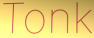
Tonk